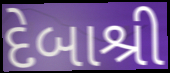
દેબાશ્રી